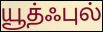
யூத்ஃபுல்